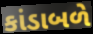
કાંડાબળે